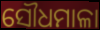
ସୌଧମାଳା